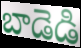
బాడెడి